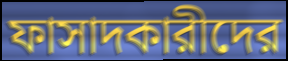
ফাসাদকারীদের